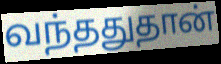
வந்ததுதான்